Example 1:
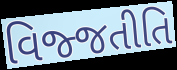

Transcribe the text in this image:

વિજ્જતીતિ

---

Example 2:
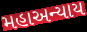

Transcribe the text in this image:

મહાઅન્યાય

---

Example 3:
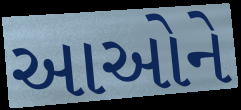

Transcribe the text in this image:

આઓને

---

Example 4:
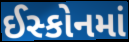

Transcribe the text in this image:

ઈસ્કોનમાં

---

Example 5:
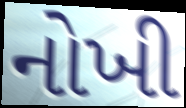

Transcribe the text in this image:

નોખી